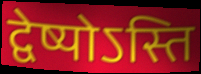
द्वेष्योऽस्ति